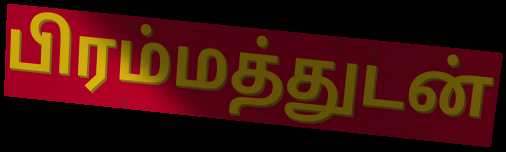
பிரம்மத்துடன்